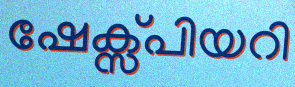
ഷേക്സ്പിയറി